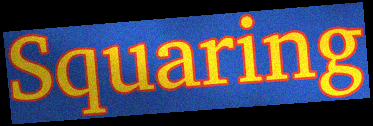
Squaring